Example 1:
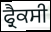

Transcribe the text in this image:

ਫ੍ਰੈਕਸੀ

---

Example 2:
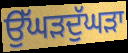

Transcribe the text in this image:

ਉੱਘੜਦੁੱਘੜਾ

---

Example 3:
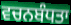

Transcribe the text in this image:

ਵਚਨਬੰਧਤਾ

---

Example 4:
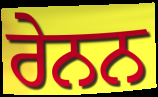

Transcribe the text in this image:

ਰੇਨਨ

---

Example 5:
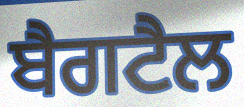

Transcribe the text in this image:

ਬੈਗਟੈਲ